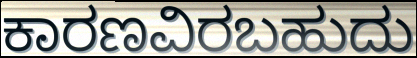
ಕಾರಣವಿರಬಹುದು